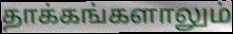
தாக்கங்களாலும்